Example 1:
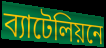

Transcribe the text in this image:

ব্যাটেলিয়নে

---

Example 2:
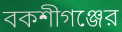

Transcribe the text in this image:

বকশীগঞ্জের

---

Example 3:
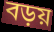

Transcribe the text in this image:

বড়য়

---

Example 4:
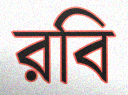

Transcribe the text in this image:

রবি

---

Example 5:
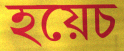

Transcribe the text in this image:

হয়েচ